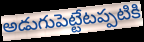
అడుగుపెట్టేటప్పటికి